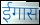
ईगास